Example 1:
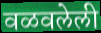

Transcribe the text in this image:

वळवलेली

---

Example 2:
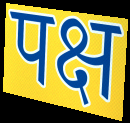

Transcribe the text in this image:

पक्ष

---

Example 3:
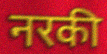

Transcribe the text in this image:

नरकी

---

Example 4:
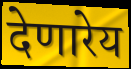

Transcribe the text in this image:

देणारेय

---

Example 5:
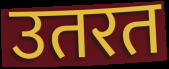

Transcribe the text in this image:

उतरत